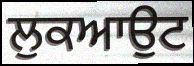
ਲੁਕਆਉਟ